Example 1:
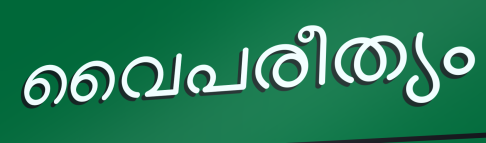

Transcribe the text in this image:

വൈപരീത്യം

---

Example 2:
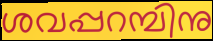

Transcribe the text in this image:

ശവപ്പറമ്പിനു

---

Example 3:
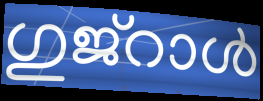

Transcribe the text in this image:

ഗുജ്റാൾ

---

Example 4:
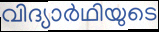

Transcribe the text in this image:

വിദ്യാർഥിയുടെ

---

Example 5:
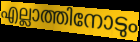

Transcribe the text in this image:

എല്ലാത്തിനോടും